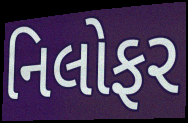
નિલોફર